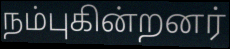
நம்புகின்றனர்